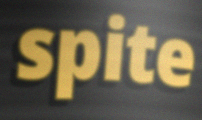
spite